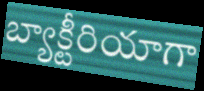
బ్యాక్టీరియాగా